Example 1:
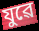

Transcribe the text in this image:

যুৱে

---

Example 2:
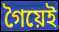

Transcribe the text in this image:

গৈয়েই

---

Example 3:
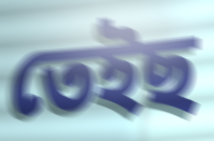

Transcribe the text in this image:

তেইছ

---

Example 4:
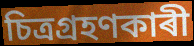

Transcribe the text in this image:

চিত্ৰগ্ৰহণকাৰী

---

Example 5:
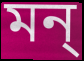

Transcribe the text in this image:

মন্